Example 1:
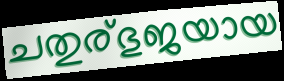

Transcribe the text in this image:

ചതുര്ഭുജയായ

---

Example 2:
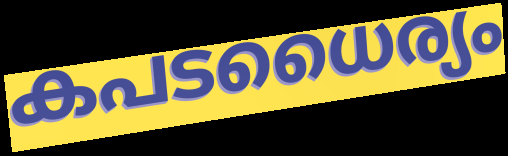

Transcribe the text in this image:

കപടധൈര്യം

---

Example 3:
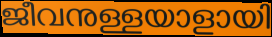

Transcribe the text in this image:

ജീവനുള്ളയാളായി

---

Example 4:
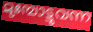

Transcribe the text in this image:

മുമ്പോട്ടുവന്ന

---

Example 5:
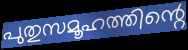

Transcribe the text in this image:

പുതുസമൂഹത്തിന്റെ